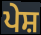
ਪੇਸ਼